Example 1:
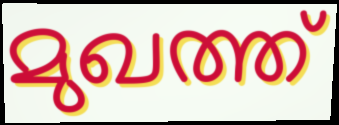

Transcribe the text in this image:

മുഖത്ത്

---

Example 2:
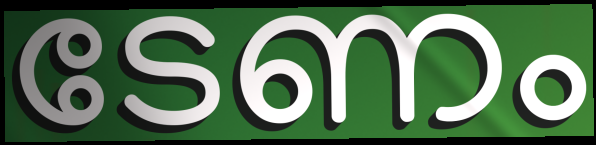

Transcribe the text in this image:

ടേണം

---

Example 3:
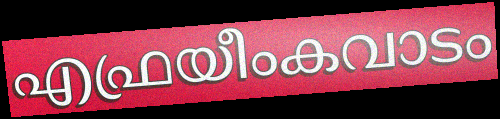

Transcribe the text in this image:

എഫ്രയീംകവാടം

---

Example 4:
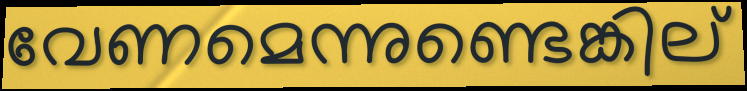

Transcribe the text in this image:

വേണമെന്നുണ്ടെങ്കില്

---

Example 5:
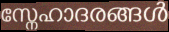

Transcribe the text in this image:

സ്നേഹാദരങ്ങൾ